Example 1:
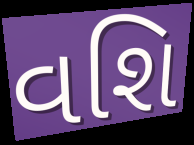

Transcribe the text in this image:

વશિ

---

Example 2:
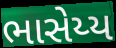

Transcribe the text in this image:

ભાસેય્ય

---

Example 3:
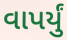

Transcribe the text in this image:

વાપર્યું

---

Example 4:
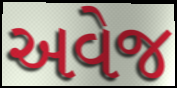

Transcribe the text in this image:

અવેજ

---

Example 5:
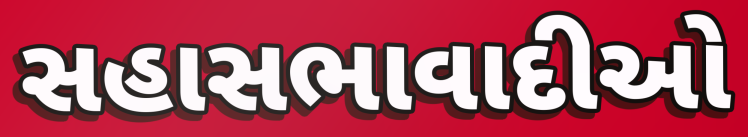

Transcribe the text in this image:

સહાસભાવાદીઓ